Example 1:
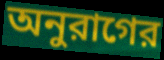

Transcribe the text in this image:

অনুরাগের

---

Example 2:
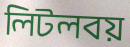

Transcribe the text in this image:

লিটলবয়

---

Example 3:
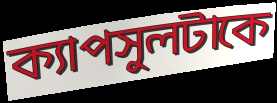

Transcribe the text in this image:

ক্যাপসুলটাকে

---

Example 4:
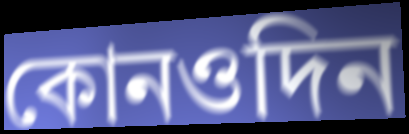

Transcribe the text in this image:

কোনওদিন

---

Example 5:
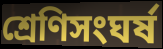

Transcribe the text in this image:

শ্রেণিসংঘর্ষ